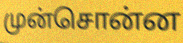
முன்சொன்ன